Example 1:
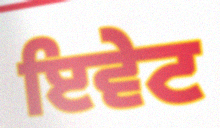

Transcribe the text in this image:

ਇਵੇਟ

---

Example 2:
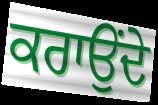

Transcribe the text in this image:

ਕਰਾਉਂਦੇ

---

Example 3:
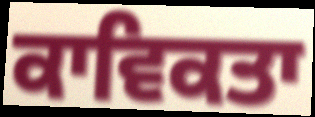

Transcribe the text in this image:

ਕਾਵਿਕਤਾ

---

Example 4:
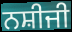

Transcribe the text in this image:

ਨਸ਼ੀਜੀ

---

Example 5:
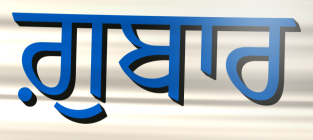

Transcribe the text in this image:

ਗ਼ੁਬਾਰ